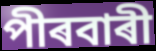
পীৰবাৰী